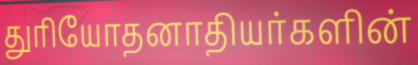
துரியோதனாதியர்களின்